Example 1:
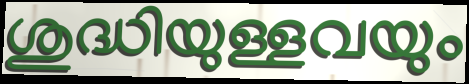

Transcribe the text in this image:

ശുദ്ധിയുള്ളവയും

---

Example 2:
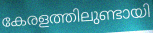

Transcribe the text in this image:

കേരളത്തിലുണ്ടായി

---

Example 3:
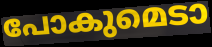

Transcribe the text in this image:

പോകുമെടാ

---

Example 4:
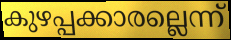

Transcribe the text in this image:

കുഴപ്പക്കാരല്ലെന്ന്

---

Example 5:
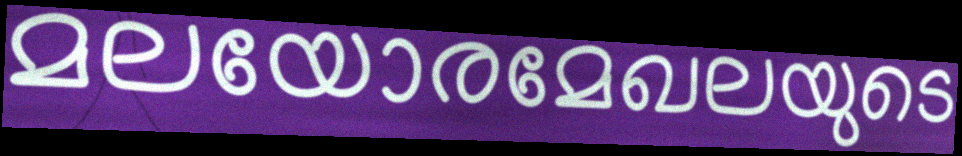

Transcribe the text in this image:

മലയോരമേഖലയുടെ